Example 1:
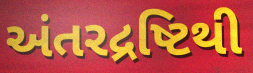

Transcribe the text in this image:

અંતરદ્રષ્ટિથી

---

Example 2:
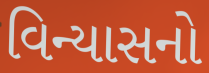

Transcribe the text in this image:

વિન્યાસનો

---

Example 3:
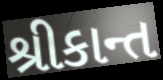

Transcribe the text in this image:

શ્રીકાન્ત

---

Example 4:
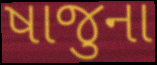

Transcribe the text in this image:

ષાજુના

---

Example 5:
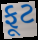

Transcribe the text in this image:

ફૂટ